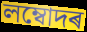
লম্বোদৰ